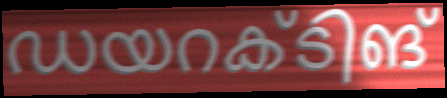
ഡയറക്ടിങ്